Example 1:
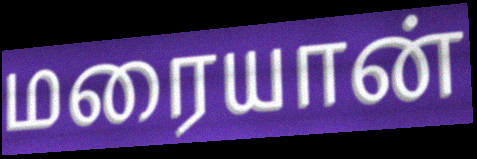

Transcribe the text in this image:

மரையான்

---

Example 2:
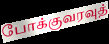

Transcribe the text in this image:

போக்குவரவுத்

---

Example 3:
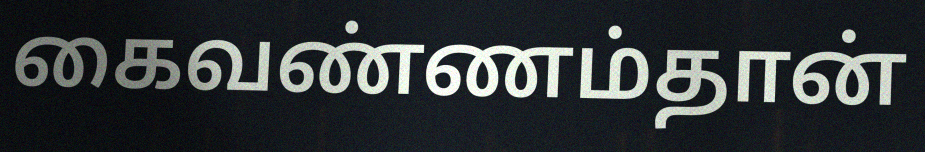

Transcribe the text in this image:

கைவண்ணம்தான்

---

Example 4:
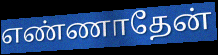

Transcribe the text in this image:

எண்ணாதேன்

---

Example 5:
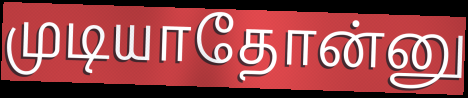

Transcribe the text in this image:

முடியாதோன்னு